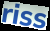
riss